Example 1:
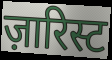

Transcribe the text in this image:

ज़ारिस्ट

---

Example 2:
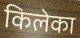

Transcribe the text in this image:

किलेका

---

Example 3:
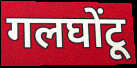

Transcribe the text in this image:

गलघोंटू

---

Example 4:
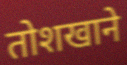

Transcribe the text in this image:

तोशखाने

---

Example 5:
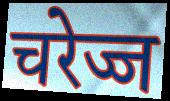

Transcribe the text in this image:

चरेज्ज